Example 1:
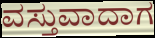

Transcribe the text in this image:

ವಸ್ತುವಾದಾಗ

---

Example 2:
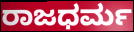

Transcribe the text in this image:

ರಾಜಧರ್ಮ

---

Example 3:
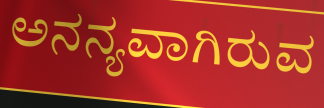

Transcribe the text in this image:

ಅನನ್ಯವಾಗಿರುವ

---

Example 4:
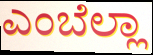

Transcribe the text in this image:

ಎಂಬೆಲ್ಲಾ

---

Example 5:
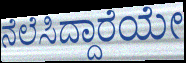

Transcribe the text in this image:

ನೆಲೆಸಿದ್ದಾರೆಯೇ